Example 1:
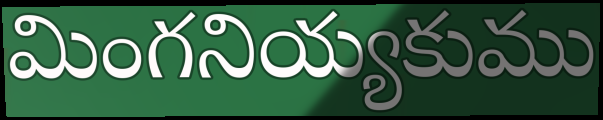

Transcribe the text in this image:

మింగనియ్యకుము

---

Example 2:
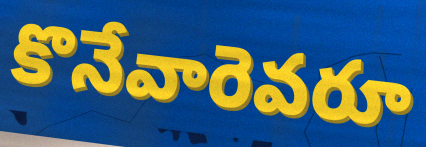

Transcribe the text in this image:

కొనేవారెవరూ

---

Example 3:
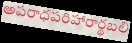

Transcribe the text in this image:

అపరాధపరిహారార్థబలి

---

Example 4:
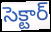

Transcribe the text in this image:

సెక్టార్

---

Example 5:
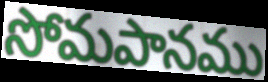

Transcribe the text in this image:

సోమపానము